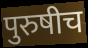
पुरुषीच